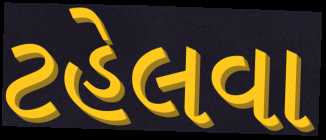
ટહેલવા